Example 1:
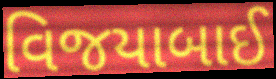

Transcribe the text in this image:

વિજયાબાઈ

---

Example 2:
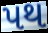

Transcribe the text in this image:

પથ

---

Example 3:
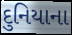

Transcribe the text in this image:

દુનિયાના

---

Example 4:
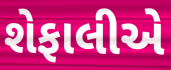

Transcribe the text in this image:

શેફાલીએ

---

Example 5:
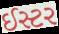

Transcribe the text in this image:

ઈસ્ટર